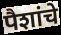
पैशांचे